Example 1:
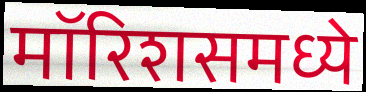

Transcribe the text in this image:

मॉरिशसमध्ये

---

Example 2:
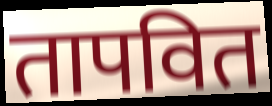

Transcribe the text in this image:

तापवित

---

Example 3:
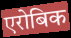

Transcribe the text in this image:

एरोबिक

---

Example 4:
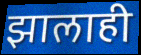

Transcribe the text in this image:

झालाही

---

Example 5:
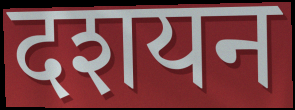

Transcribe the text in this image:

दशयन